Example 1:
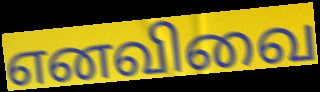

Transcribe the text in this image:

எனவிவை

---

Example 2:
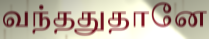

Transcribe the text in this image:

வந்ததுதானே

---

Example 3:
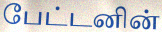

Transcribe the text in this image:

பேட்டனின்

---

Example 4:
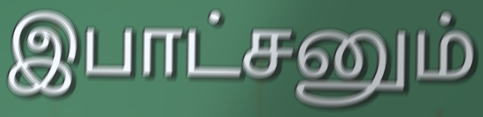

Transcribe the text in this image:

இபாட்சனும்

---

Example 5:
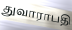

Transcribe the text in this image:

துவாராபதி